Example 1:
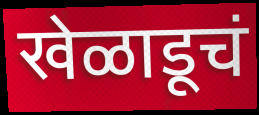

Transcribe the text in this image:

खेळाडूचं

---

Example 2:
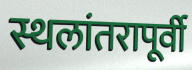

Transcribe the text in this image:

स्थलांतरापूर्वी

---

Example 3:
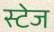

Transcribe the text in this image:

स्टेज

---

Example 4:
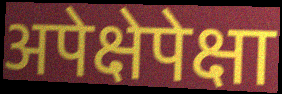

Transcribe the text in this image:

अपेक्षेपेक्षा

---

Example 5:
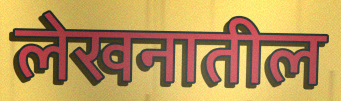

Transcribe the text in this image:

लेखनातील